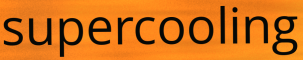
supercooling